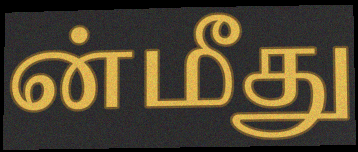
ன்மீது